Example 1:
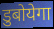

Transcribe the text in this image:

डुबोयेगा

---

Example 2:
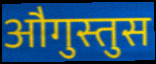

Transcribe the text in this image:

औगुस्तुस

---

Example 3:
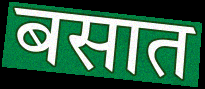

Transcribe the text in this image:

बसात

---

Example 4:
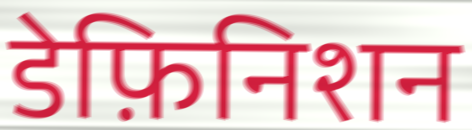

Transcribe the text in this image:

डेफ़िनिशन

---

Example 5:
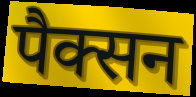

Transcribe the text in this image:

पैक्सन